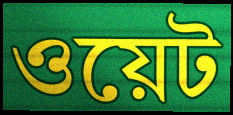
ওয়েট